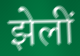
झेलीं